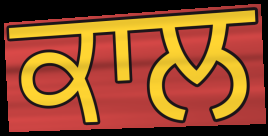
ਕਾਲ